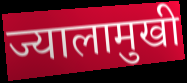
ज्यालामुखी